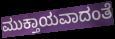
ಮುಕ್ತಾಯವಾದಂತೆ